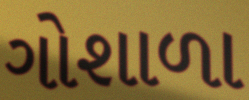
ગોશાળા